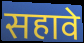
सहावे